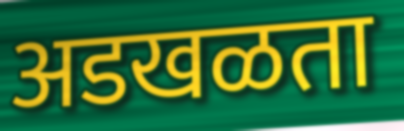
अडखळता